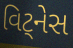
વિટ્નેસ